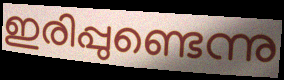
ഇരിപ്പുണ്ടെന്നു